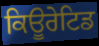
ਕਿਊਰੇਟਿਡ